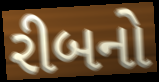
રીબનો